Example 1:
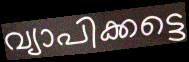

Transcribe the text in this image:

വ്യാപിക്കട്ടെ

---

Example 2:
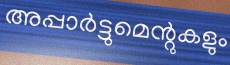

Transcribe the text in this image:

അപ്പാർട്ടുമെന്റുകളും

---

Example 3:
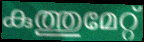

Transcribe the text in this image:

കുത്തുമേറ്റ്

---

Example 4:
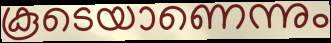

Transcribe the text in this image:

കൂടെയാണെന്നും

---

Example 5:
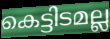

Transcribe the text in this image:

കെട്ടിടമല്ല